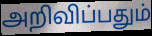
அறிவிப்பதும்